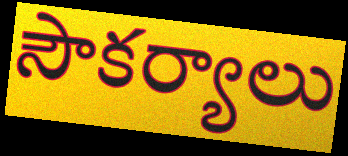
సౌకర్యాలు